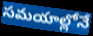
సమయాల్లోనే